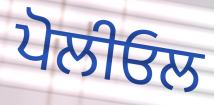
ਪੋਲੀਓਲ